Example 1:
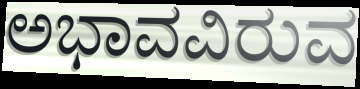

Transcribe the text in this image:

ಅಭಾವವಿರುವ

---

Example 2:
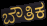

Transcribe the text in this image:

ಬೌತಿಕ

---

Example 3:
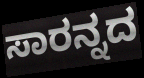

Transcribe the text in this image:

ಸಾರನ್ನದ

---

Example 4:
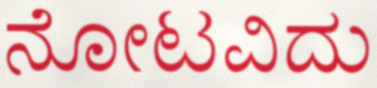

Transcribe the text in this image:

ನೋಟವಿದು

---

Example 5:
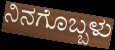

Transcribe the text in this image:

ನಿನಗೊಬ್ಬಳು